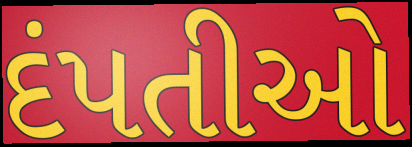
દંપતીઓ